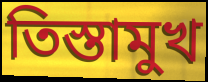
তিস্তামুখ